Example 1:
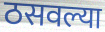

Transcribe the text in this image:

ठसवल्या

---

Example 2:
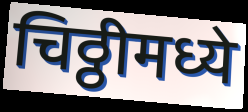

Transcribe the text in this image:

चिठ्ठीमध्ये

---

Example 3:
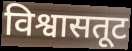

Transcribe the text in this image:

विश्वासतूट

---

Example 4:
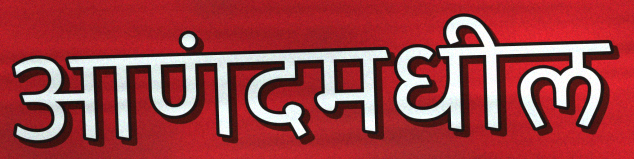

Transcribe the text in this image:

आणंदमधील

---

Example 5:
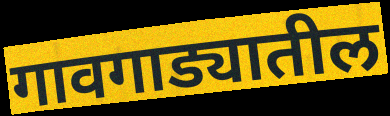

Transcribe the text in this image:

गावगाड्यातील